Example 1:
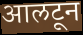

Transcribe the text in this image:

आलटून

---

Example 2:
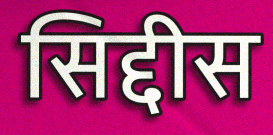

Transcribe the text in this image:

सिद्दीस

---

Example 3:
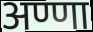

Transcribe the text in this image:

अण्णा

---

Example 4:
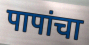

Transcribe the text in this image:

पापांचा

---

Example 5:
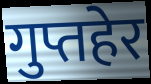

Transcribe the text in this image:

गुप्तहेर